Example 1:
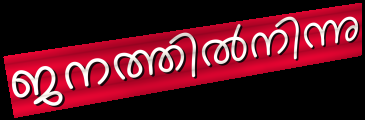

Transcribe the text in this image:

ജനത്തിൽനിന്നു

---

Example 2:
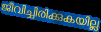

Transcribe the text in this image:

ജീവിച്ചിരിക്കുകയില്ല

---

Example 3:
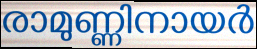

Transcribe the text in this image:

രാമുണ്ണിനായർ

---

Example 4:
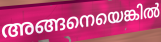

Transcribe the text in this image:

അങ്ങനെയെങ്കിൽ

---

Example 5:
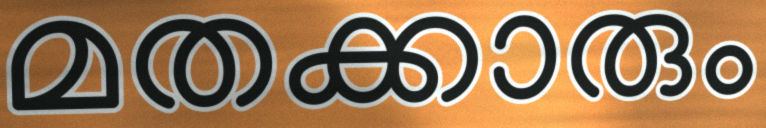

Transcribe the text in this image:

മതക്കാരും